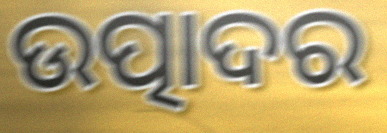
ଉତ୍ପାଦର